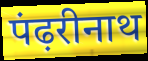
पंढ़रीनाथ